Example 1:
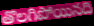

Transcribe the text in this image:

తొలగిపోయినది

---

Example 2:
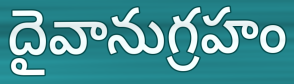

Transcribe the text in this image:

దైవానుగ్రహం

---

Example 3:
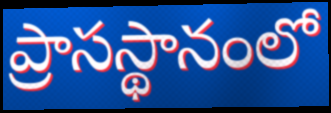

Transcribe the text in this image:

ప్రాసస్థానంలో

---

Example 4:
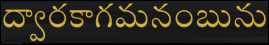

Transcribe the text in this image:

ద్వారకాగమనంబును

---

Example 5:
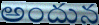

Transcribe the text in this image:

అందున